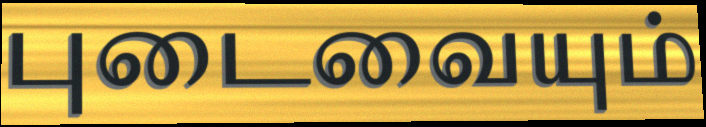
புடைவையும்